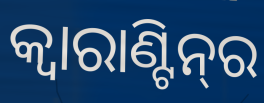
କ୍ବାରାଣ୍ଟିନ୍‌ର